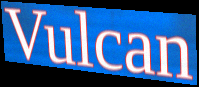
Vulcan